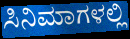
ಸಿನಿಮಾಗಳಲ್ಲಿ